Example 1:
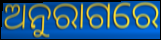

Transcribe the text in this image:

ଅନୁରାଗରେ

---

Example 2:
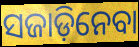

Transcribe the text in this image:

ସଜାଡ଼ିନେବା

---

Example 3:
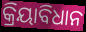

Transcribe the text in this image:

କ୍ରିୟାବିଧାନ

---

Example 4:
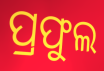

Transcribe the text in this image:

ପ୍ରଫୁଲ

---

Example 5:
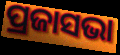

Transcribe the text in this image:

ପ୍ରଜାସଭା